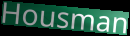
Housman